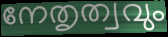
നേതൃത്വവും